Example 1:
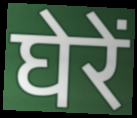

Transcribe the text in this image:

घेरें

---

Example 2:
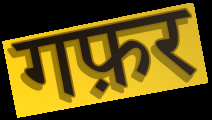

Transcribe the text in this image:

गफ़र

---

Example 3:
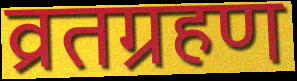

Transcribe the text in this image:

व्रतग्रहण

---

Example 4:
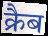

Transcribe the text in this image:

क्रैब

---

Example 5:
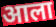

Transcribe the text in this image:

आला